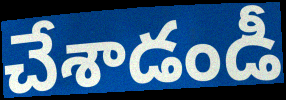
చేశాడండీ